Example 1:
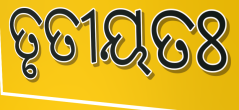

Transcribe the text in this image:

ତୃତୀୟତଃ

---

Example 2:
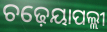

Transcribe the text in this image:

ଚଢ଼େୟାପଲ୍ଲୀ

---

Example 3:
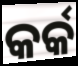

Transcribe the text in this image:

କର୍କ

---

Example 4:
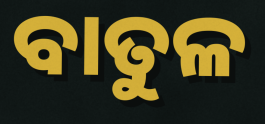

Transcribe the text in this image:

ବାତୁଳ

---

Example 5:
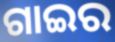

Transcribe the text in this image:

ଗାଇର